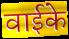
वाईके